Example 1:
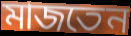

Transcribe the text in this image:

মাজতেন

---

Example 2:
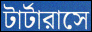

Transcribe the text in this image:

টার্টারাসে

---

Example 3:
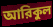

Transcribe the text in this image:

আরিকুল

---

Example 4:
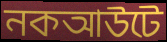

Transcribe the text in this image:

নকআউটে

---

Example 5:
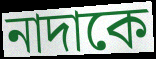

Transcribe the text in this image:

নাদাকে